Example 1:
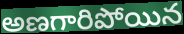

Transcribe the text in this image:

అణగారిపోయిన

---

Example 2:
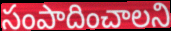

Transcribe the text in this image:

సంపాదించాలని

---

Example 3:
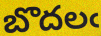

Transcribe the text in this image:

బొదలఁ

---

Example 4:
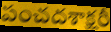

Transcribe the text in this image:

పంచదశాక్షరీ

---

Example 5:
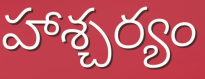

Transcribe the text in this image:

హాశ్చర్యం